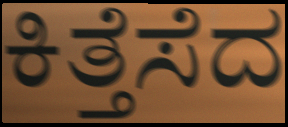
ಕಿತ್ತೆಸೆದ